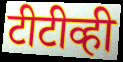
टीटीव्ही